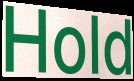
Hold